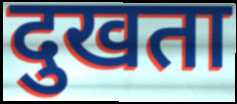
दुखता